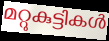
മറ്റുകുട്ടികൾ